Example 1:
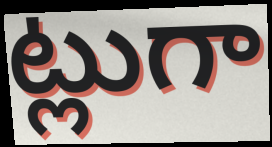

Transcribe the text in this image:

ట్లుగా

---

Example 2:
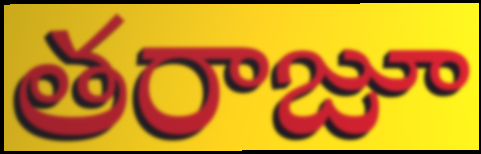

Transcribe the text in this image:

తరాజూ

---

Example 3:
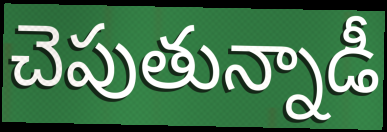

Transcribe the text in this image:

చెపుతున్నాడీ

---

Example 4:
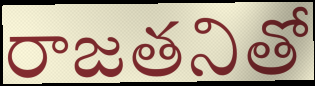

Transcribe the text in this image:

రాజతనితో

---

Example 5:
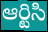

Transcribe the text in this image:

ఆర్టిసి